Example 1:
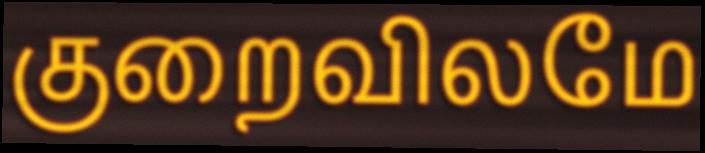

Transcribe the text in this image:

குறைவிலமே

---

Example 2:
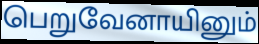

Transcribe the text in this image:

பெறுவேனாயினும்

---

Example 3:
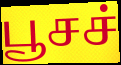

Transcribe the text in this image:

பூசச்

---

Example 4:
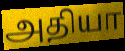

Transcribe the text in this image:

அதியா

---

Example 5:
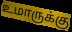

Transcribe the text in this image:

உமாருக்கு